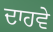
ਦਾਹਵੇ